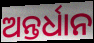
ଅନ୍ତର୍ଧାନ